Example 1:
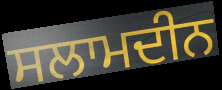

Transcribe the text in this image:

ਸਲਾਮਦੀਨ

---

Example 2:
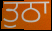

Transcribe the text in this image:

ਤੁਠਾ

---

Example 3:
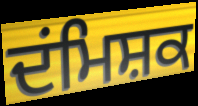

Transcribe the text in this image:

ਦਂਮਿਸ਼ਕ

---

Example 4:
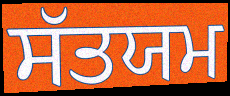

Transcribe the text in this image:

ਸੱਤਯਮ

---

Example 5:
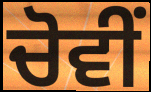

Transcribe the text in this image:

ਚੋਵੀਂ